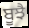
ਬੂਝੈ